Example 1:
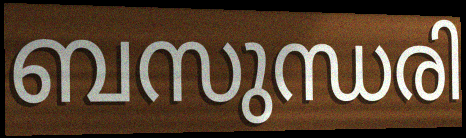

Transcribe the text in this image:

ബസുന്ധരി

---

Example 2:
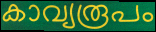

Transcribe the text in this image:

കാവ്യരൂപം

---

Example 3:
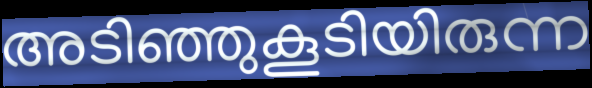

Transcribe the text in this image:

അടിഞ്ഞുകൂടിയിരുന്ന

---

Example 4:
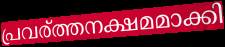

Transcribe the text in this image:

പ്രവര്ത്തനക്ഷമമാക്കി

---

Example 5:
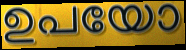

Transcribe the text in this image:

ഉപയോ